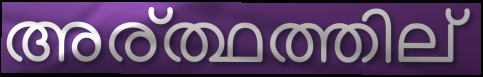
അര്ത്ഥത്തില്